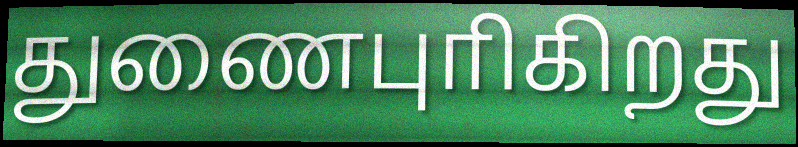
துணைபுரிகிறது